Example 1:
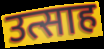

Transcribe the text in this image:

उत्साह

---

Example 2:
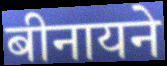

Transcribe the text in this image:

बीनायने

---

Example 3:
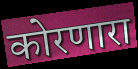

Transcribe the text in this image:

कोरणारा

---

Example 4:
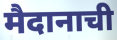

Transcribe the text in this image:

मैदानाची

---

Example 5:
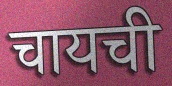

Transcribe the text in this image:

चायची